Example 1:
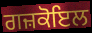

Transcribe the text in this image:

ਗਜ਼ਕੋਇਲ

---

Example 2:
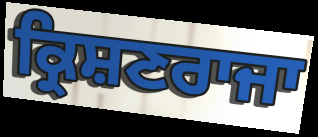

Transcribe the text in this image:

ਕ੍ਰਿਸ਼ਣਰਾਜਾ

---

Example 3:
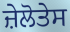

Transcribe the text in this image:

ਜ਼ੇਲੋਤੇਸ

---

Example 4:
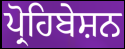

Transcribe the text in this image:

ਪ੍ਰੋਹਿਬੇਸ਼ਨ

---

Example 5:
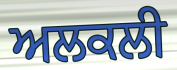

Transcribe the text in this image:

ਅਲਕਲੀ